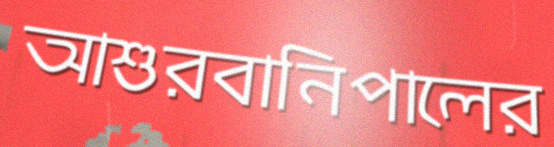
আশুরবানিপালের